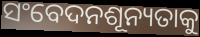
ସଂବେଦନଶୂନ୍ୟତାକୁ